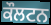
ਕੌਲਟਨ